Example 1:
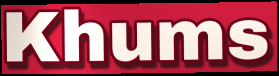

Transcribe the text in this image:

Khums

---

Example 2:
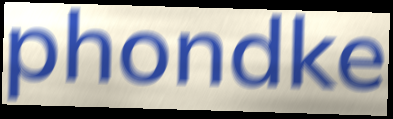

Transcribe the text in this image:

phondke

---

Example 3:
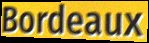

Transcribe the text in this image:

Bordeaux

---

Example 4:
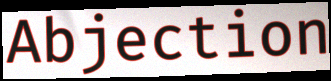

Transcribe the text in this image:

Abjection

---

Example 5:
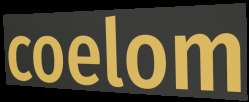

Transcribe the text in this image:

coelom